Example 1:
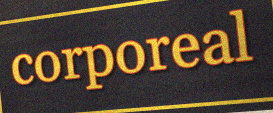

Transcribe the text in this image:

corporeal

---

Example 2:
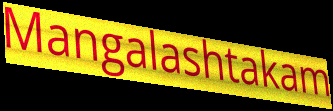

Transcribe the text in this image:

Mangalashtakam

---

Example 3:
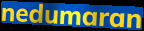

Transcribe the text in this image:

nedumaran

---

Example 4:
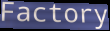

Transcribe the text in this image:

Factory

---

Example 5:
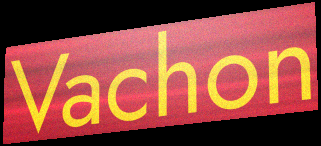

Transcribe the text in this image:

Vachon